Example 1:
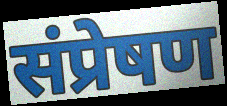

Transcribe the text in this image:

संप्रेषण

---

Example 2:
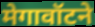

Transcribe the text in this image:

मेगावॉटने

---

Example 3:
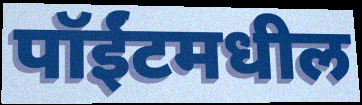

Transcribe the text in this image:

पॉईंटमधील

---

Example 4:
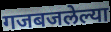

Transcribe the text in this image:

गजबजलेल्या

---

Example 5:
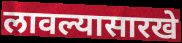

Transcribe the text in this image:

लावल्यासारखे